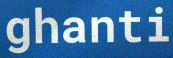
ghanti